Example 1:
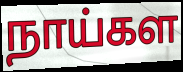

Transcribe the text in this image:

நாய்கள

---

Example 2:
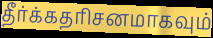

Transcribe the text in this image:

தீர்க்கதரிசனமாகவும்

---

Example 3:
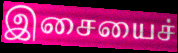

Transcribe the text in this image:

இசையைச்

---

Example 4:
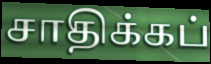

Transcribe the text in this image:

சாதிக்கப்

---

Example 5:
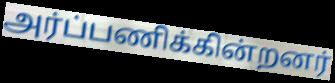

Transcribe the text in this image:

அர்ப்பணிக்கின்றனர்